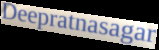
Deepratnasagar